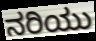
ನರಿಯು